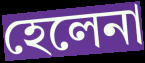
হেলেনা